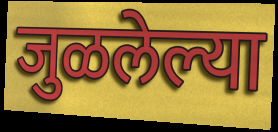
जुळलेल्या